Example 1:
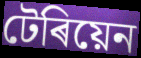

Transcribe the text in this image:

টেৰিয়েন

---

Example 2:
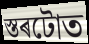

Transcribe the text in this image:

স্তৰটোত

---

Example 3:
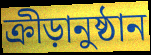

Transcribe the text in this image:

ক্ৰীড়ানুষ্ঠান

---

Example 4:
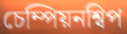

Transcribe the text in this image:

চেম্পিয়নশ্বিপ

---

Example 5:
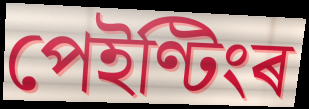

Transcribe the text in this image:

পেইণ্টিংৰ